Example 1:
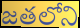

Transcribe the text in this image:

జతలోని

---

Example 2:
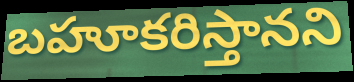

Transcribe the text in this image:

బహూకరిస్తానని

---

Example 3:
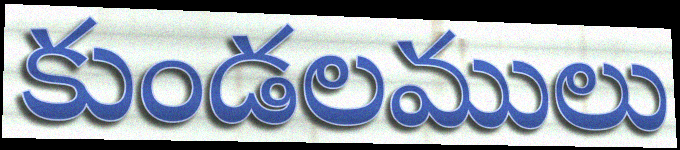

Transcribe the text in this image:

కుండలములు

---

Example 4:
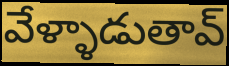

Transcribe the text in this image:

వేళ్ళాడుతావ్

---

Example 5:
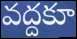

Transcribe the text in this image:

వద్దకూ